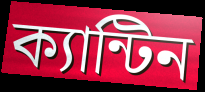
ক্যান্টিন